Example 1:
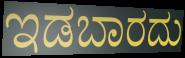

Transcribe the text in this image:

ಇಡಬಾರದು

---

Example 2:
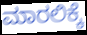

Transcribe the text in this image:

ಮಾರಲಿಕ್ಕೆ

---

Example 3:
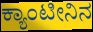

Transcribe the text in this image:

ಕ್ಯಾಂಟೀನಿನ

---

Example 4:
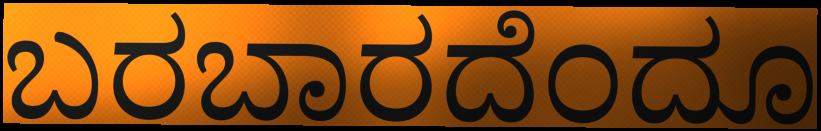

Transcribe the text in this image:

ಬರಬಾರದೆಂದೂ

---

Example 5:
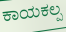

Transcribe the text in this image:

ಕಾಯಕಲ್ಪ